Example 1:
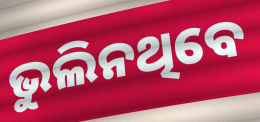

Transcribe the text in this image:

ଭୁଲିନଥିବେ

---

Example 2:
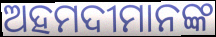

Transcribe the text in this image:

ଅହମଦୀମାନଙ୍କ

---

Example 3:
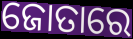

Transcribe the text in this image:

ଜୋତାରେ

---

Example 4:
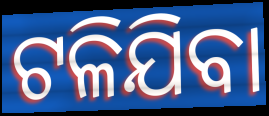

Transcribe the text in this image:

ଟଳିଯିବା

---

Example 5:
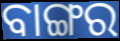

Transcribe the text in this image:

ବାଙ୍ଗର